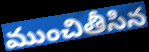
ముంచితీసిన